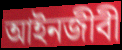
আইনজীবী